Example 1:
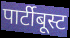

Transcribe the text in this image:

पार्टीबूस्ट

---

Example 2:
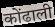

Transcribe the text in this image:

कोंढाली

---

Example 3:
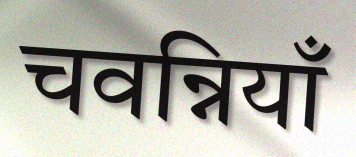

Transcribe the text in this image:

चवन्नियाँ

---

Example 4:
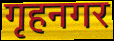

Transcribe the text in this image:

गृहनगर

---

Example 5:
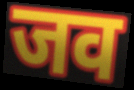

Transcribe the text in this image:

जव